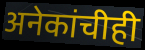
अनेकांचीही